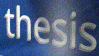
thesis